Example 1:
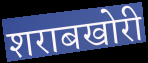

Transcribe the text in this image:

शराबखोरी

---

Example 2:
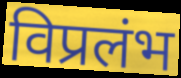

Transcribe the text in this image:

विप्रलंभ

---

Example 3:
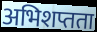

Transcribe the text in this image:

अभिशप्तता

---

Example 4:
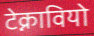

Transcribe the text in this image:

टेक्नावियो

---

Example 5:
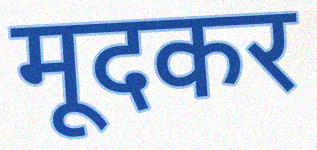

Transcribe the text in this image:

मूदकर